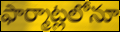
ఫార్మాట్లలోనూ